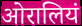
ओरालियं